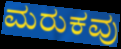
ಮರುಕವು